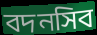
বদনসিব